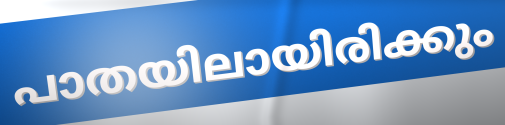
പാതയിലായിരിക്കും